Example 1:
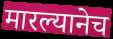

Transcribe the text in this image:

मारल्यानेच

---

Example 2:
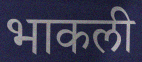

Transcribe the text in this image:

भाकली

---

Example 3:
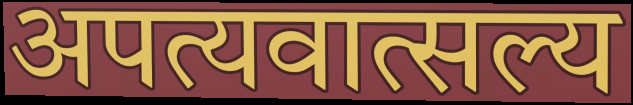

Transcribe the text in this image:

अपत्यवात्सल्य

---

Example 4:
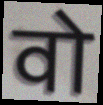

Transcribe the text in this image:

वो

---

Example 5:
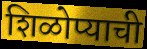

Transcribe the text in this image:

शिळोप्याची